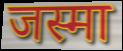
जस्मा